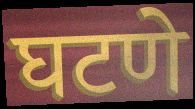
घटणे